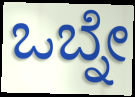
ಒಬ್ನೇ